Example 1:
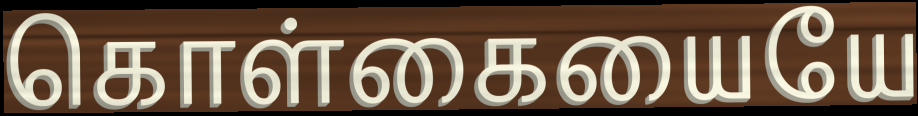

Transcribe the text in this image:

கொள்கையையே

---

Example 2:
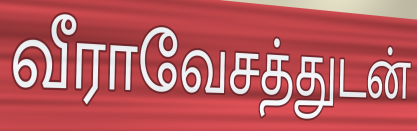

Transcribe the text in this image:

வீராவேசத்துடன்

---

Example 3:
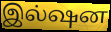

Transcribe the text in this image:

இல்ஷன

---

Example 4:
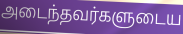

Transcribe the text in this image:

அடைந்தவர்களுடைய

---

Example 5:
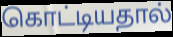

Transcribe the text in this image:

கொட்டியதால்